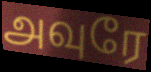
அவுரே